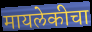
मायलेकीचा